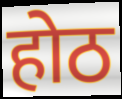
होठ